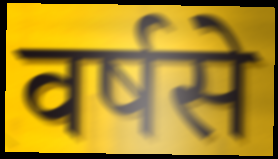
वर्षसे